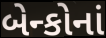
બેન્કોનાં